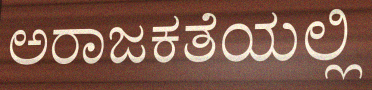
ಅರಾಜಕತೆಯಲ್ಲಿ